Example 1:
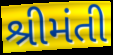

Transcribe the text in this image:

શ્રીમંતી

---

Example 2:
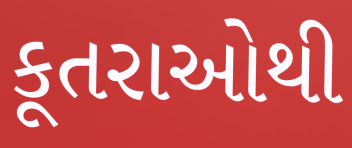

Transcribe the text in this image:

કૂતરાઓથી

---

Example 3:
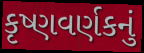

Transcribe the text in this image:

કૃષ્ણવર્ણકનું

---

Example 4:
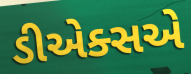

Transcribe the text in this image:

ડીએક્સએ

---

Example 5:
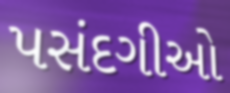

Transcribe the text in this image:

પસંદગીઓ